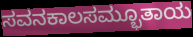
ಸವನಕಾಲಸಮ್ಭೂತಾಯ